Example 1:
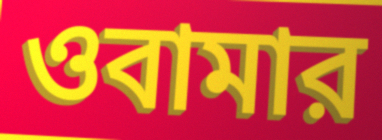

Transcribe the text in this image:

ওবামার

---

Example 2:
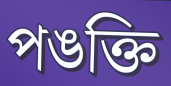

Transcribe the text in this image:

পঙক্তি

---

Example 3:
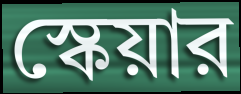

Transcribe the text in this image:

স্কেয়ার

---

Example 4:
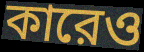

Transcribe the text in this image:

কারেও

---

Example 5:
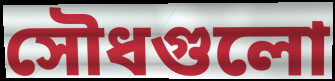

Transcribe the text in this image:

সৌধগুলো